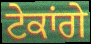
ਟੇਕਾਂਗੇ